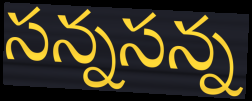
సన్నసన్న